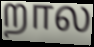
றால